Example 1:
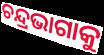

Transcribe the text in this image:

ଚନ୍ଦ୍ରଭାଗାକୁ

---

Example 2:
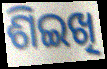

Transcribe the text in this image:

ଶିଇଖି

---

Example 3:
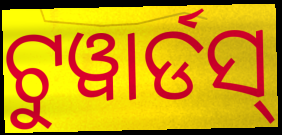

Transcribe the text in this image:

ଟୁୱାର୍ଡସ୍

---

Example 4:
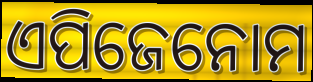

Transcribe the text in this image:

ଏପିଜେନୋମ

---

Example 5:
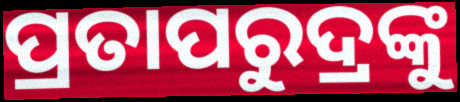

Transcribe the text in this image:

ପ୍ରତାପରୁଦ୍ରଙ୍କୁ